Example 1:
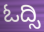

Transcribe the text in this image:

ಓದ್ಸಿ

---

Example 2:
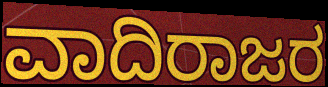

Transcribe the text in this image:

ವಾದಿರಾಜರ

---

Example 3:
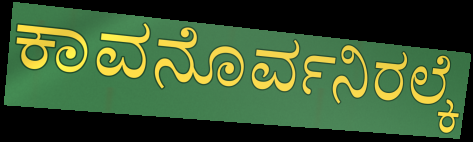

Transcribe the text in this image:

ಕಾವನೊರ್ವನಿರಲ್ಕೆ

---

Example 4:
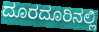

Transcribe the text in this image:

ದೂರದೂರಿನಲ್ಲಿ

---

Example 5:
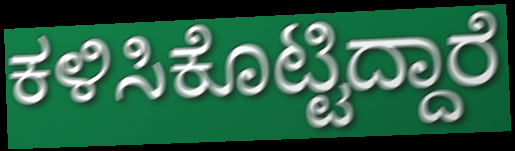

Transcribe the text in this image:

ಕಳಿಸಿಕೊಟ್ಟಿದ್ದಾರೆ